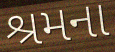
શ્રમના